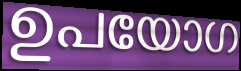
ഉപയോഗ